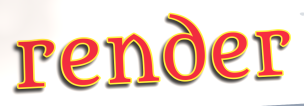
render